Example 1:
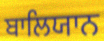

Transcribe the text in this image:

ਬਾਲਿਯਾਨ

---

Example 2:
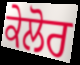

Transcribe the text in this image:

ਕੇਲੋਰ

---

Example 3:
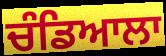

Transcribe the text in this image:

ਚੰਡਿਆਲਾ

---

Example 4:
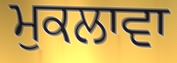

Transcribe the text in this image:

ਮੁਕਲਾਵਾ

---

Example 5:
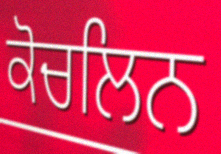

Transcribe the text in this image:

ਕੋਚਲਿਨ